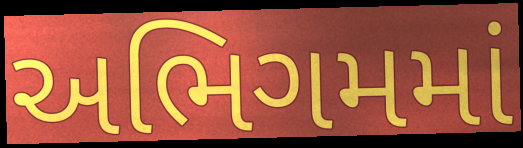
અભિગમમાં